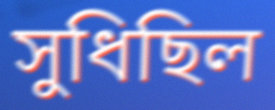
সুধিছিল